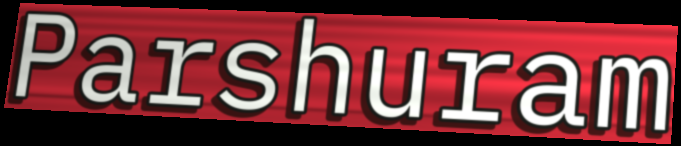
Parshuram